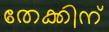
തേക്കിന്